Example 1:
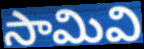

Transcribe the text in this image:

సామివి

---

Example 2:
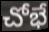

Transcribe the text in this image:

చోభే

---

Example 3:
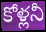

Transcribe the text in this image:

కోళ్లనీ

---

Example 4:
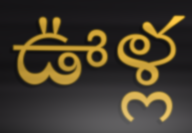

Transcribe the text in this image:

ఊళ్ల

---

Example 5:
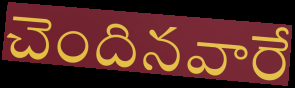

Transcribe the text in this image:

చెందినవారే